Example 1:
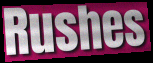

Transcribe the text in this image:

Rushes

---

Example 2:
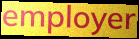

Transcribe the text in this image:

employer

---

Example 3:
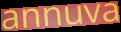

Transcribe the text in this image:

annuva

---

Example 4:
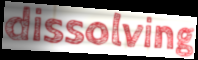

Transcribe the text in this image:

dissolving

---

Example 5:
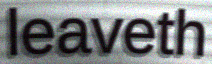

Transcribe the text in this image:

leaveth